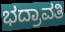
ಭದ್ರಾವತಿ